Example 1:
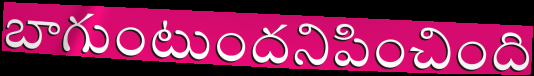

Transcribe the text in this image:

బాగుంటుందనిపించింది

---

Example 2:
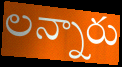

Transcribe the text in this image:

లన్నారు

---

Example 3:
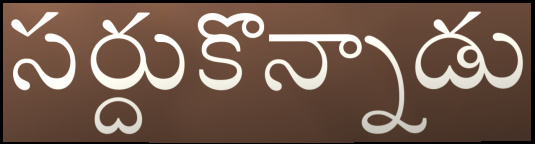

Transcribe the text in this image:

సర్దుకొన్నాడు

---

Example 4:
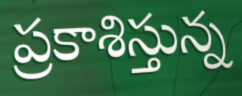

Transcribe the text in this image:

ప్రకాశిస్తున్న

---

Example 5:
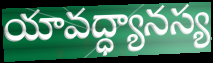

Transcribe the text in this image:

యావద్ధ్యానస్య